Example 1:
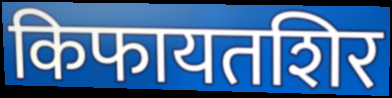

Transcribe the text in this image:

किफायतशिर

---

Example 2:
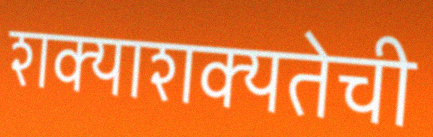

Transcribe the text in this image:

शक्याशक्यतेची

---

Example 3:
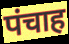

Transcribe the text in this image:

पंचाह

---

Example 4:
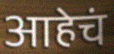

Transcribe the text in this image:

आहेचं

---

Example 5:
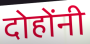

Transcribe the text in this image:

दोहोंनी